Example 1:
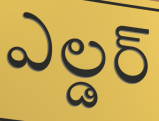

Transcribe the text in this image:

ఎల్డర్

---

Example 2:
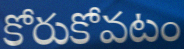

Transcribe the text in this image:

కోరుకోవటం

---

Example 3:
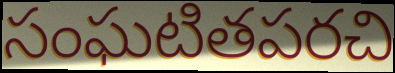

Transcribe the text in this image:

సంఘటితపరచి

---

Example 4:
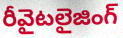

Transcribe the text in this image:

రీవైటలైజింగ్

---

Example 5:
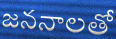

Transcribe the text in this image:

జననాలతో